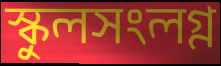
স্কুলসংলগ্ন